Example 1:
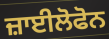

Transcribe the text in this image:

ਜ਼ਾਈਲੋਫੋਨ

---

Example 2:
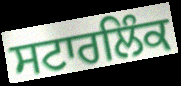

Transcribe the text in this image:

ਸਟਾਰਲਿੰਕ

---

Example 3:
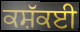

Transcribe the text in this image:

ਕਸ਼ੱਕਈ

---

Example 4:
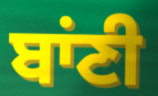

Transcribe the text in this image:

ਬਾਂਣੀ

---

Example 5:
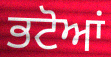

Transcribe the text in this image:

ਭਟੋਆਂ